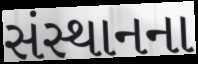
સંસ્થાનના